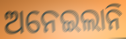
ଅନେଇଲାନି